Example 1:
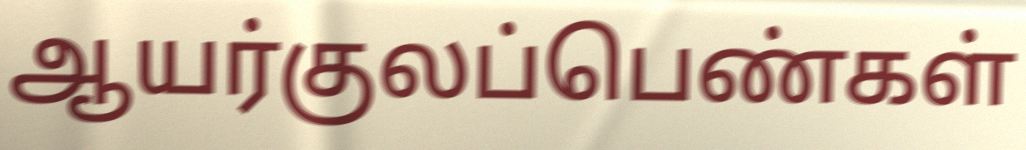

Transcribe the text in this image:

ஆயர்குலப்பெண்கள்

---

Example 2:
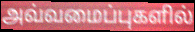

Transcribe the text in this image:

அவ்வமைப்புகளில்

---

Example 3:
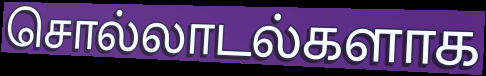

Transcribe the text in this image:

சொல்லாடல்களாக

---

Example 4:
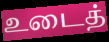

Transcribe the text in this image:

உடைத்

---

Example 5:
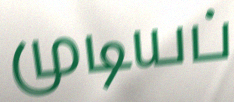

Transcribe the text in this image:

முடியப்